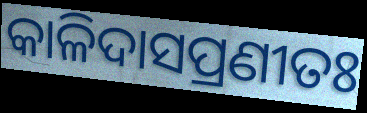
କାଳିଦାସପ୍ରଣୀତଃ